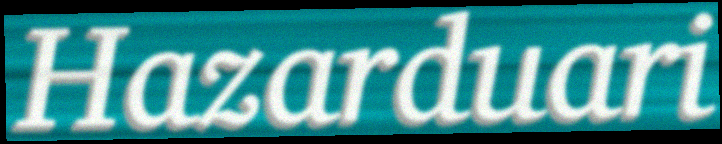
Hazarduari